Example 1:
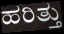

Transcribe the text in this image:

ಹರಿತ್ತು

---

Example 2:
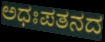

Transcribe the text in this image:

ಅಧಃಪತನದ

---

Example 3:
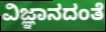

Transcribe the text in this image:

ವಿಜ್ಞಾನದಂತೆ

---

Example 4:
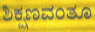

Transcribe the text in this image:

ಶಿಕ್ಷಣವಂತೂ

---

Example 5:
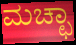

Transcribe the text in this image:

ಮಚ್ಛಾ